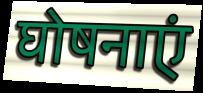
घोषनाएं